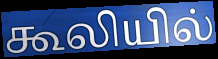
கூலியில்